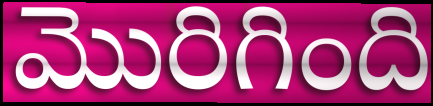
మొరిగింది